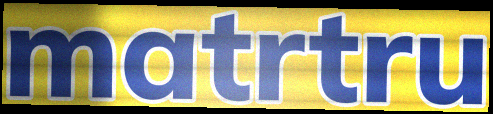
matrtru